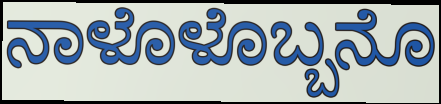
ನಾಳೊಳೊಬ್ಬನೊ